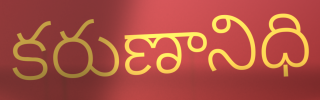
కరుణానిధి